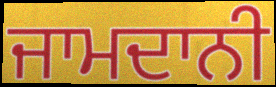
ਜਾਮਦਾਨੀ